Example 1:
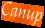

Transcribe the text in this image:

Canup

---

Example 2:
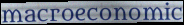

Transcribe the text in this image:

macroeconomic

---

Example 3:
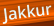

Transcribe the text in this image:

Jakkur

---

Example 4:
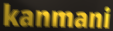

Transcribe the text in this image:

kanmani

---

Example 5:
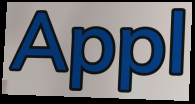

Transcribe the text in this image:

Appl